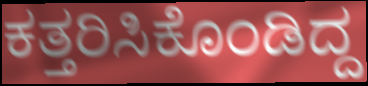
ಕತ್ತರಿಸಿಕೊಂಡಿದ್ದ